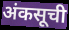
अंकसूची